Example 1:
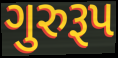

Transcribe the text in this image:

ગુરુરૂપ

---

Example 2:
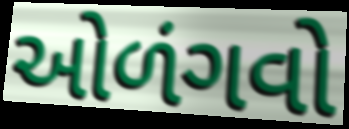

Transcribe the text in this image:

ઓળંગવો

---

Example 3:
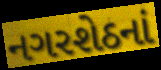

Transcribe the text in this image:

નગરશેઠનાં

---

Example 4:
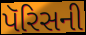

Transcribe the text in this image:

પૅરિસની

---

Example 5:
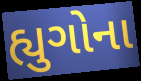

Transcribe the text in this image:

હ્યુગોના